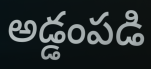
అడ్డంపడి